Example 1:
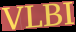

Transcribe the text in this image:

VLBI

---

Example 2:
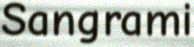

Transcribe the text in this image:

Sangrami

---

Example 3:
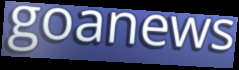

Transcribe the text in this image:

goanews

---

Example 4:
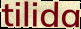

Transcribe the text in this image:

tilida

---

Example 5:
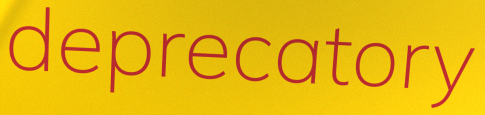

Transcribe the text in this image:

deprecatory